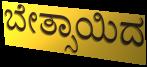
ಬೇತ್ಸಾಯಿದ